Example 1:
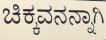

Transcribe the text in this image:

ಚಿಕ್ಕವನನ್ನಾಗಿ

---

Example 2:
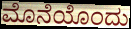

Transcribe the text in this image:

ಮೊನೆಯೊಂದು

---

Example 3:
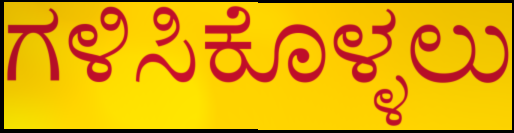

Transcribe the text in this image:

ಗಳಿಸಿಕೊಳ್ಳಲು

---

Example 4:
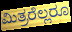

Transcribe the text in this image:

ಮಿತ್ರರೆಲ್ಲರೂ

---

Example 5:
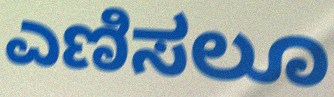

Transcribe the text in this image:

ಎಣಿಸಲೂ